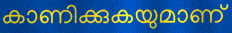
കാണിക്കുകയുമാണ്